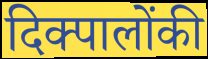
दिक्पालोंकी